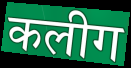
कलीग